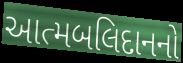
આત્મબલિદાનનો